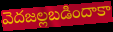
వెదజల్లబడిందాకా